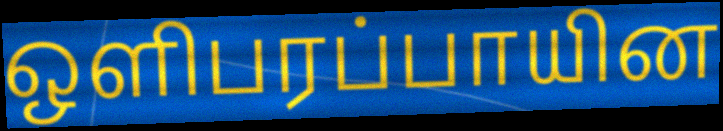
ஒளிபரப்பாயின